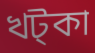
খট্‌কা